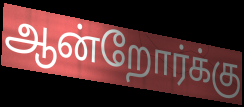
ஆன்றோர்க்கு